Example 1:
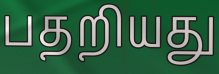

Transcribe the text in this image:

பதறியது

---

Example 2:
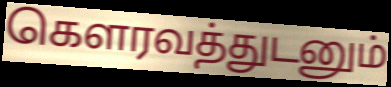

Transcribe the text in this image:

கௌரவத்துடனும்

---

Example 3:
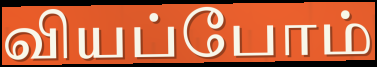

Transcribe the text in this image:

வியப்போம்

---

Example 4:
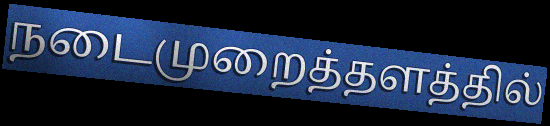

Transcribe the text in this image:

நடைமுறைத்தளத்தில்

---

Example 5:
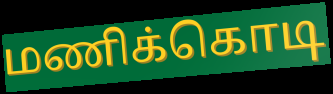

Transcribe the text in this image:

மணிக்கொடி